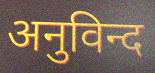
अनुविन्द